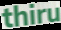
thiru